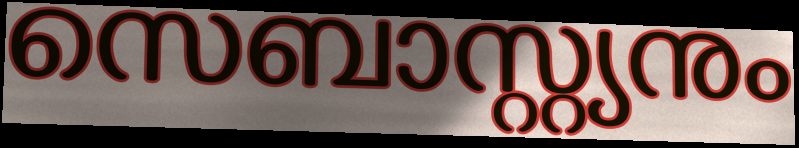
സെബാസ്റ്റ്യനും